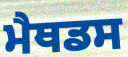
ਮੈਥਡਸ